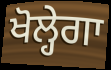
ਖੋਲ੍ਹੇਗਾ